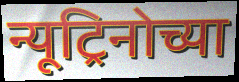
न्यूट्रिनोच्या